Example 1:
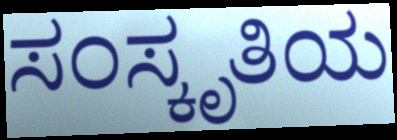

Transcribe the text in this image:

ಸಂಸ್ಕೃತಿಯ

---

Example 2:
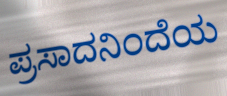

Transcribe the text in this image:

ಪ್ರಸಾದನಿಂದೆಯ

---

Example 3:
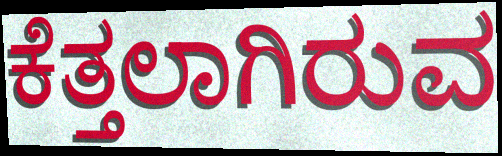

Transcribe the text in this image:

ಕೆತ್ತಲಾಗಿರುವ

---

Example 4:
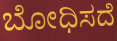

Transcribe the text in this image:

ಬೋಧಿಸದೆ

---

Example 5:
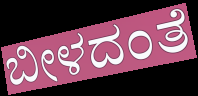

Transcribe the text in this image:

ಬೀಳದಂತೆ